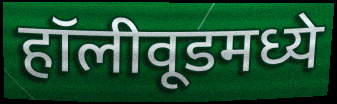
हॉलीवूडमध्ये